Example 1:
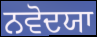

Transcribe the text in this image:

ਨਵੋਦਯਾ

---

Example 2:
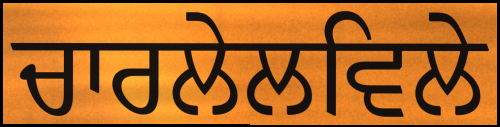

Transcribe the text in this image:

ਚਾਰਲੇਲਵਿਲੇ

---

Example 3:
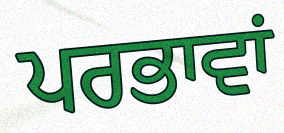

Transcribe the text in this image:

ਪਰਭਾਵਾਂ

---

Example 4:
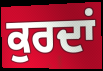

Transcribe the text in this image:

ਕੁਰਦਾਂ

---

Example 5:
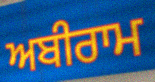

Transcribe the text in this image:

ਅਬੀਰਾਮ